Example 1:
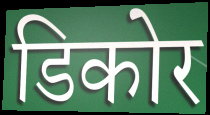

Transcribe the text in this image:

डिकोर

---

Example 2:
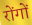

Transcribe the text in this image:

रोंगों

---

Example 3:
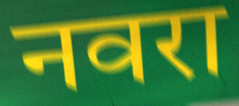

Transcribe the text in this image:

नवरा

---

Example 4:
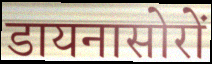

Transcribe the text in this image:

डायनासोरों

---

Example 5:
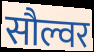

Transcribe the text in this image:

सौल्वर